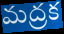
మద్రక